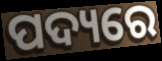
ପଦ୍ୟରେ